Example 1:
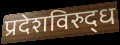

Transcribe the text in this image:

प्रदेशविरुद्ध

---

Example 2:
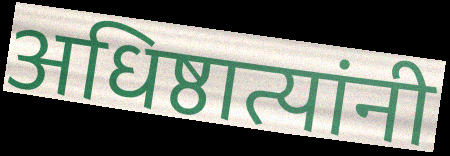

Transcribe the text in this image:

अधिष्ठात्यांनी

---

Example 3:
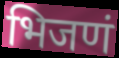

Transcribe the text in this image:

भिजणं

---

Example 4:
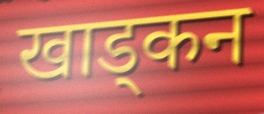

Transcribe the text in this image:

खाड्कन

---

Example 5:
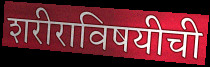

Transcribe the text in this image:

शरीराविषयीची